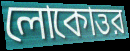
লোকোত্তর